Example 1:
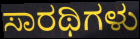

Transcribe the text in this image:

ಸಾರಥಿಗಳು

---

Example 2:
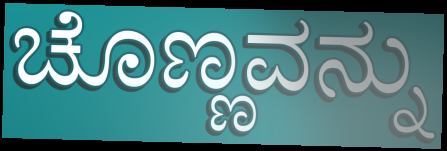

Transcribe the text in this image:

ಚೊಣ್ಣವನ್ನು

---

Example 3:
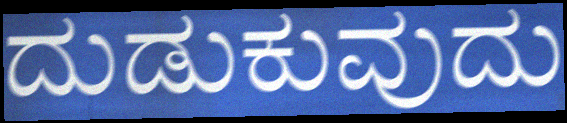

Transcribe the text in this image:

ದುಡುಕುವುದು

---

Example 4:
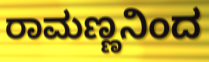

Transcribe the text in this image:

ರಾಮಣ್ಣನಿಂದ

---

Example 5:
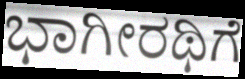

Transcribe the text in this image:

ಭಾಗೀರಥಿಗೆ